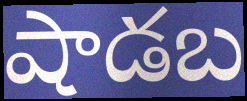
షాడబ